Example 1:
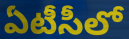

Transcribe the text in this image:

ఏటీసీలో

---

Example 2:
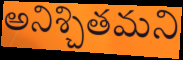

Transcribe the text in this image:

అనిశ్చితమని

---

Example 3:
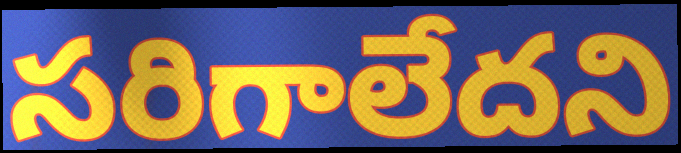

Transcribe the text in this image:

సరిగాలేదని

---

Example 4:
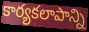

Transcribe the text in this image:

కార్యకలాపాన్ని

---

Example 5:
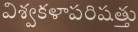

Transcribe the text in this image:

విశ్వకళాపరిషత్తు